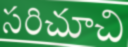
సరిచూచి